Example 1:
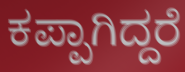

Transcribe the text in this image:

ಕಪ್ಪಾಗಿದ್ದರೆ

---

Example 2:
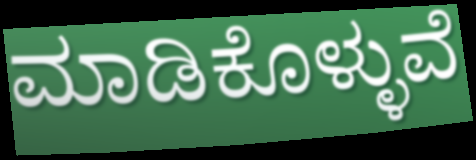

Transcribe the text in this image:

ಮಾಡಿಕೊಳ್ಳುವೆ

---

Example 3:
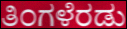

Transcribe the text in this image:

ತಿಂಗಳೆರಡು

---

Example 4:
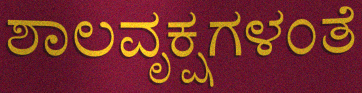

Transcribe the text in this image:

ಶಾಲವೃಕ್ಷಗಳಂತೆ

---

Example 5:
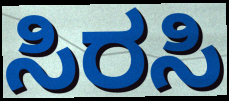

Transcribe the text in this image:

ಸಿರಸಿ